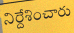
నిర్దేశించారు